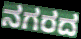
ನಗರದ